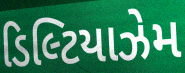
ડિલ્ટિયાઝેમ